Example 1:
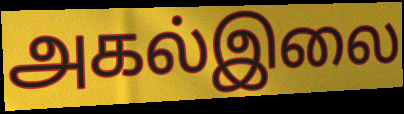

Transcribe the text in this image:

அகல்இலை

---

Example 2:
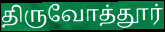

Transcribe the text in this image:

திருவோத்தூர்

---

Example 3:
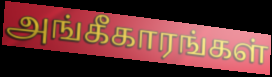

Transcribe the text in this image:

அங்கீகாரங்கள்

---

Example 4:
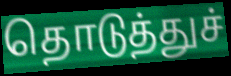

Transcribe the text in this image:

தொடுத்துச்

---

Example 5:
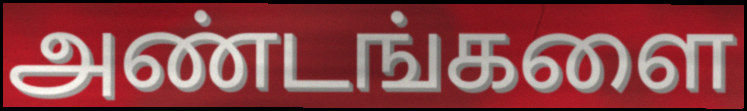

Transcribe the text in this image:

அண்டங்களை